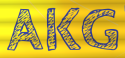
AKG